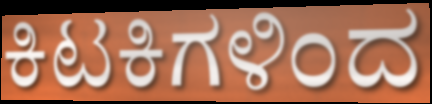
ಕಿಟಕಿಗಳಿಂದ